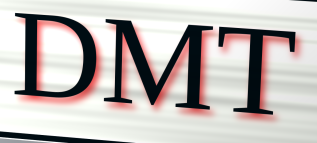
DMT